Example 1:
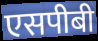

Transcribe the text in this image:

एसपीबी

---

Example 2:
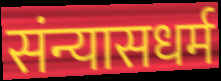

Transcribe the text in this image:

संन्यासधर्म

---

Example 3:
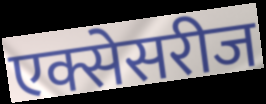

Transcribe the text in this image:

एक्सेसरीज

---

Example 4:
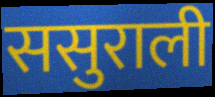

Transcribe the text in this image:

ससुराली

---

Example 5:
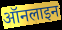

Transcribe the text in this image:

ऑनलाइन